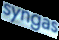
syngas